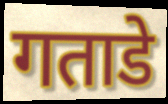
गताडे